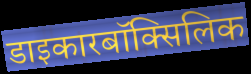
डाइकारबॉक्सिलिक